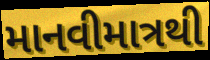
માનવીમાત્રથી